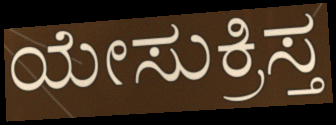
ಯೇಸುಕ್ರಿಸ್ತ